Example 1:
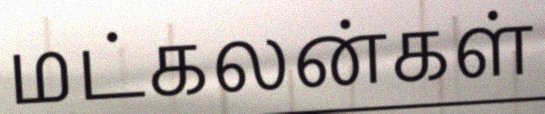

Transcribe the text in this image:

மட்கலன்கள்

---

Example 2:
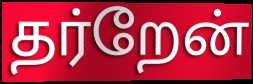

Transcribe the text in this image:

தர்றேன்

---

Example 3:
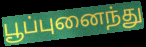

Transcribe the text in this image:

பூப்புனைந்து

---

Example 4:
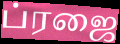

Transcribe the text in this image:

ப்ரஜை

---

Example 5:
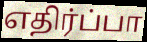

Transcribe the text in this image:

எதிர்ப்பா